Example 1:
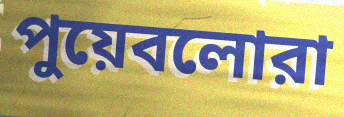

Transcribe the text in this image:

পুয়েবলোরা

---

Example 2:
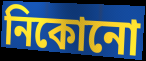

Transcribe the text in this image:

নিকোনো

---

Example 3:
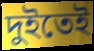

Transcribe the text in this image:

দুইতেই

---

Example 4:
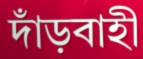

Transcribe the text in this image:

দাঁড়বাহী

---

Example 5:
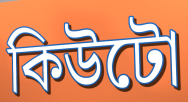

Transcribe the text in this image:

কিউটো